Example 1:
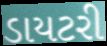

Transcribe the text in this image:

ડાયટરી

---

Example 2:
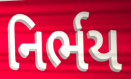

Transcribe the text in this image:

નિર્ભય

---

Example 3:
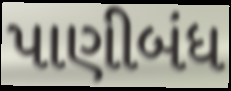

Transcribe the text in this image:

પાણીબંધ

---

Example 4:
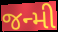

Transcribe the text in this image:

જન્મી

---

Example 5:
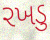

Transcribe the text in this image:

રખડુ